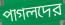
পাগলদের